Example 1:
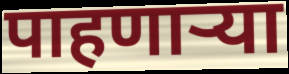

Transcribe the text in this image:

पाहणार्‍या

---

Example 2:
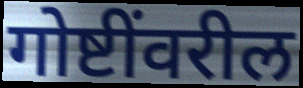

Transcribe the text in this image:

गोष्टींवरील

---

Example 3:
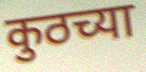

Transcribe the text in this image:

कुठच्या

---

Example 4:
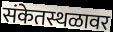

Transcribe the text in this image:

संकेतस्थळावर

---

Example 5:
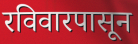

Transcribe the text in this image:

रविवारपासून